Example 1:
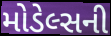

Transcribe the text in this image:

મોડેલ્સની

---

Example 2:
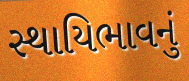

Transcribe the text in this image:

સ્થાયિભાવનું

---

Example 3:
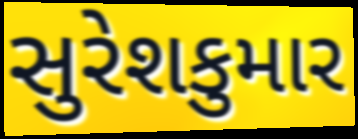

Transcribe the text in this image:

સુરેશકુમાર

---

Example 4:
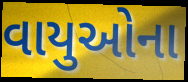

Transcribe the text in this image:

વાયુઓના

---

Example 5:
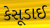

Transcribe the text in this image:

કેસૂડાઈ